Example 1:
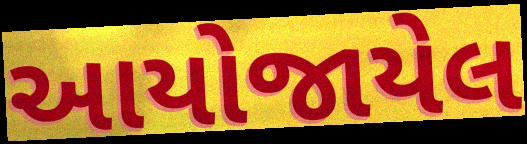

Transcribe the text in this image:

આયોજાયેલ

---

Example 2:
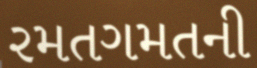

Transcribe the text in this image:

રમતગમતની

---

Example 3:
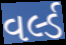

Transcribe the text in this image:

વર્લ્ડ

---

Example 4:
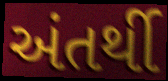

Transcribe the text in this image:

અંતર્થી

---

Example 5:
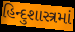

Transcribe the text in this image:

હિન્દુશાસ્ત્રમાં